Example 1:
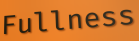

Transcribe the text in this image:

Fullness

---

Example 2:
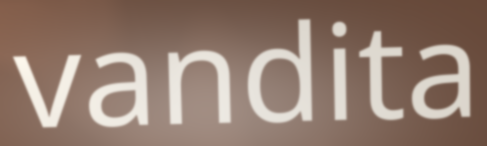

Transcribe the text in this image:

vandita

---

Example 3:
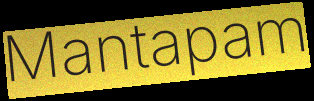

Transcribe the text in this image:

Mantapam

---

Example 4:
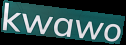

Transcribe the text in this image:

kwawo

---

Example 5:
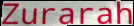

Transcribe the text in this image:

Zurarah